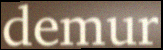
demur